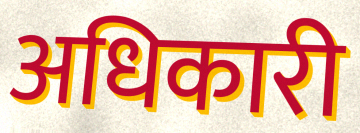
अधिकारी